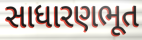
સાધારણભૂત